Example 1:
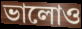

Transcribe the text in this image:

ভালোও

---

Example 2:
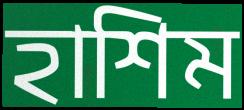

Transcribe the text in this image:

হাশিম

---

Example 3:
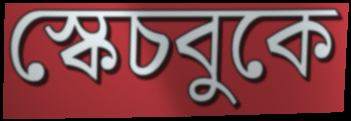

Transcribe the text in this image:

স্কেচবুকে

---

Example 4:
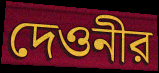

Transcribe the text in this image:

দেওনীর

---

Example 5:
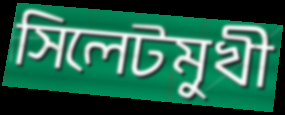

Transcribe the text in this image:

সিলেটমুখী